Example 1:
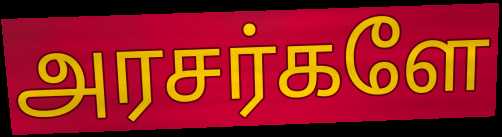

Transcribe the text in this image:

அரசர்களே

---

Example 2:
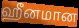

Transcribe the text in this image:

ஹீனமான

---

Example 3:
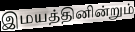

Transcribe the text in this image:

இமயத்தினின்றும்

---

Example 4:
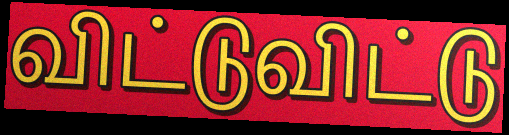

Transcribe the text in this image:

விட்டுவிட்டு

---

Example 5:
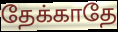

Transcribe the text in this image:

தேக்காதே